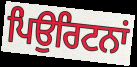
ਪਿਉਰਿਟਨਾਂ